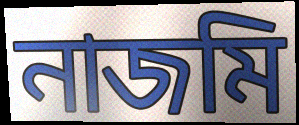
নাজমি